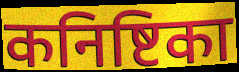
कनिष्टिका